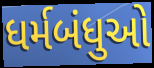
ધર્મબંધુઓ